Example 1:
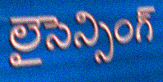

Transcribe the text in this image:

లైసెన్సింగ్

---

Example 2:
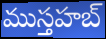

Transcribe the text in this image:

ముస్తహబ్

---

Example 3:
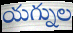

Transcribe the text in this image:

యగ్నుల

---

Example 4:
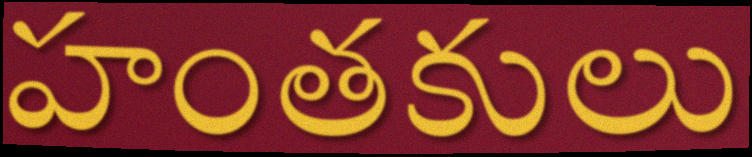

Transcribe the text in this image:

హంతకులు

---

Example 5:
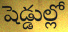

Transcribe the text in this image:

షెడ్డుల్లో